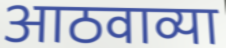
आठवाव्या